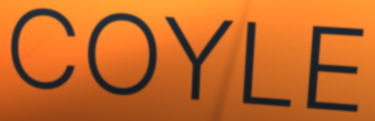
COYLE